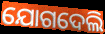
ଯୋଗଦେଲି